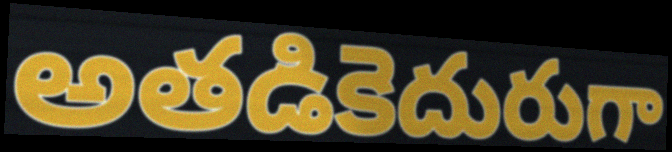
అతడికెదురుగా